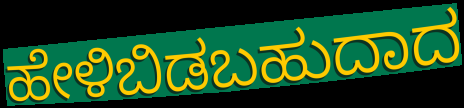
ಹೇಳಿಬಿಡಬಹುದಾದ